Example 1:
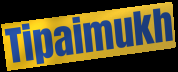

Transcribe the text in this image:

Tipaimukh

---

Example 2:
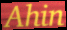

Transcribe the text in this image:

Ahin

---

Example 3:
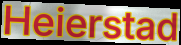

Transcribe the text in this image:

Heierstad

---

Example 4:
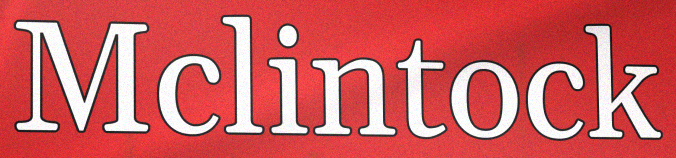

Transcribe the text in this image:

Mclintock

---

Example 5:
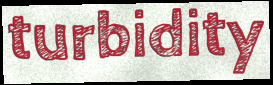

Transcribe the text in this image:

turbidity